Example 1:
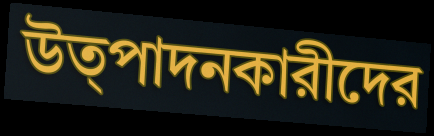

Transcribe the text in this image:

উত্পাদনকারীদের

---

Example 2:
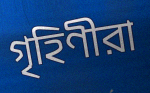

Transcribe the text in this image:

গৃহিণীরা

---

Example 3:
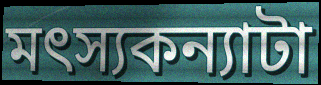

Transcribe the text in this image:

মৎস্যকন্যাটা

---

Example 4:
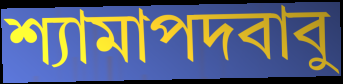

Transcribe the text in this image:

শ্যামাপদবাবু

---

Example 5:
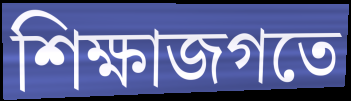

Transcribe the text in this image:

শিক্ষাজগতে